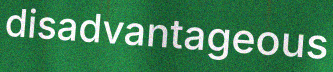
disadvantageous